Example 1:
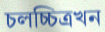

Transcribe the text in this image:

চলচ্চিত্ৰখন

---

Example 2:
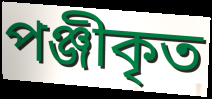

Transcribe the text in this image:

পঞ্জীকৃত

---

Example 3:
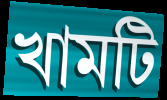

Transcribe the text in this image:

খামটি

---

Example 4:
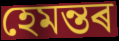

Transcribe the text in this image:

হেমন্তৰ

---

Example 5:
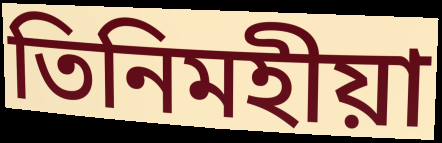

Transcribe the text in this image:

তিনিমহীয়া